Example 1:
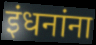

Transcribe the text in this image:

इंधनांना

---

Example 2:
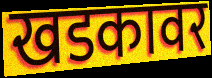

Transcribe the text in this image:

खडकावर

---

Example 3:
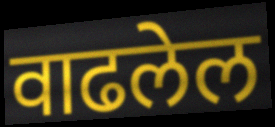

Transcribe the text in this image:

वाढलेल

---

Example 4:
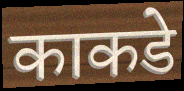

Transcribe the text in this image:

काकडे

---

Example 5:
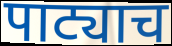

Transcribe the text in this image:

पाट्याच